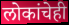
लोकांचेही